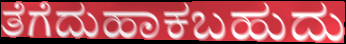
ತೆಗೆದುಹಾಕಬಹುದು